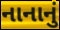
નાનાનું